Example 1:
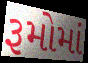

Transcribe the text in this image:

રૂમોમાં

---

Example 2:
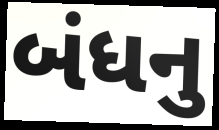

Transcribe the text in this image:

બંધનુ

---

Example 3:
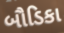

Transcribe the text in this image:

બૌડિકા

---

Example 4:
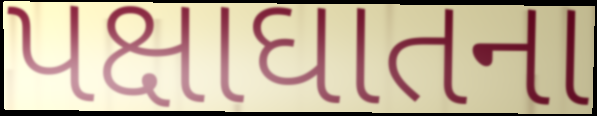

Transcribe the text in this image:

પક્ષાઘાતના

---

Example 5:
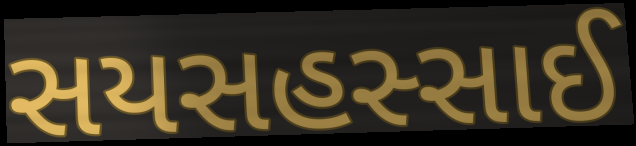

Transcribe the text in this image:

સયસહસ્સાઈ